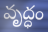
వృద్ధం